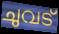
ചുവട്